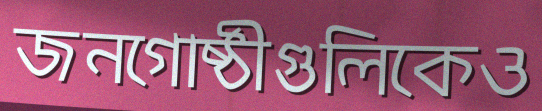
জনগোষ্ঠীগুলিকেও